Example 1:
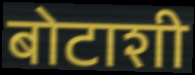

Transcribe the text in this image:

बोटाशी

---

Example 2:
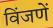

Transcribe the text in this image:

विंजणें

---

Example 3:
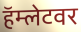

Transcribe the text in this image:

हॅम्लेटवर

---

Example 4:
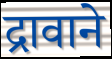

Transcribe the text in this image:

द्रावाने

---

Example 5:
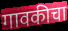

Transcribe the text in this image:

गावकीचा